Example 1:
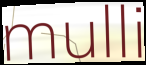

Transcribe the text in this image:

mulli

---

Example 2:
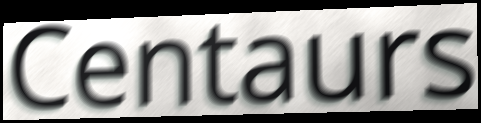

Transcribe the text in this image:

Centaurs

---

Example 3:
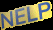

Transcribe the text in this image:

NELP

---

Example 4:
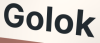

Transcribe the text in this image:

Golok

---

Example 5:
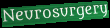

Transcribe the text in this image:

Neurosurgery